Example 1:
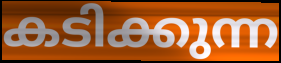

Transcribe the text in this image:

കടിക്കുന്ന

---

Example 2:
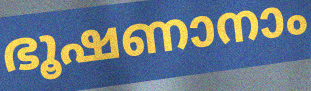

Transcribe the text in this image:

ഭൂഷണാനാം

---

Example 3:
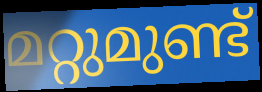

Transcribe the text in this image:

മറ്റുമുണ്ട്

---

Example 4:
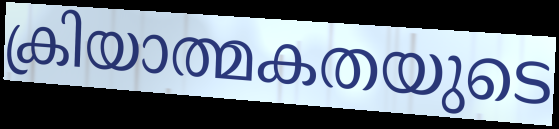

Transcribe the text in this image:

ക്രിയാത്മകതയുടെ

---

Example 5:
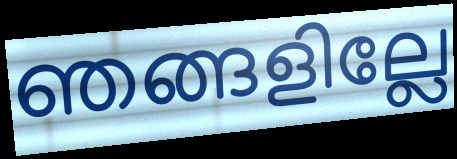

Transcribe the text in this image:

ഞങ്ങളില്ലേ